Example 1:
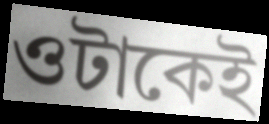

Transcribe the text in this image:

ওটাকেই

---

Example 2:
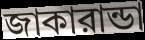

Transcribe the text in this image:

জাকারান্ডা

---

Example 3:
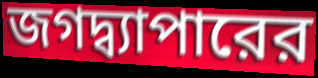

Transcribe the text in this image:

জগদ্ব্যাপারের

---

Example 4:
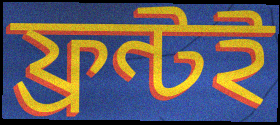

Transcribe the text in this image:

ফ্রন্টই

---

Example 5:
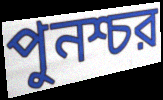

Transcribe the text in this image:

পুনশ্চর